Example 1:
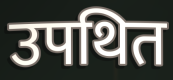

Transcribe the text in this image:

उपथित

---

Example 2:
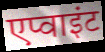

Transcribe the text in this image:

एप्वाइंट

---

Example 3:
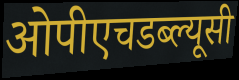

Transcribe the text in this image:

ओपीएचडब्ल्यूसी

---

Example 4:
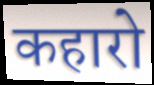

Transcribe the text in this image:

कहारो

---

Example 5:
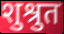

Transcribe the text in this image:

शुश्रुत